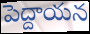
పెద్దాయన